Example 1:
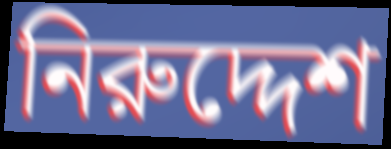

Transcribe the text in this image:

নিরুদ্দেশ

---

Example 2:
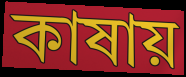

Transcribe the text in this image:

কাষায়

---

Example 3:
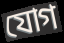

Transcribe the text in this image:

যোগ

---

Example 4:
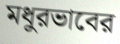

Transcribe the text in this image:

মধুরভাবের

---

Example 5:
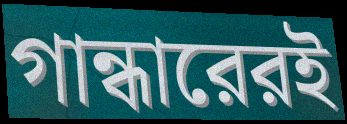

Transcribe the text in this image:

গান্ধারেরই